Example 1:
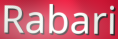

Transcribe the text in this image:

Rabari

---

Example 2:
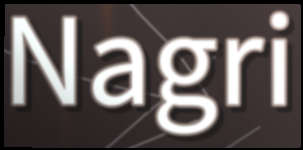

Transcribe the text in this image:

Nagri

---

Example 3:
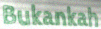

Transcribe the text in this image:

Bukankah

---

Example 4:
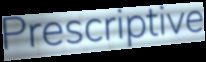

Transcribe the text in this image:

Prescriptive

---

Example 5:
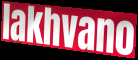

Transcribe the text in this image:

lakhvano